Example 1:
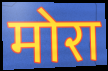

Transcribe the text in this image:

मोरा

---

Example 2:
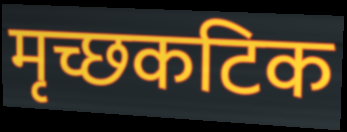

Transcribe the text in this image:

मृच्छकटिक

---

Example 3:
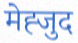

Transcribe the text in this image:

मेह्जुद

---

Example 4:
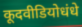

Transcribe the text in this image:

कूदवीडियोधंधे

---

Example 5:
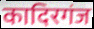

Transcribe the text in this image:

कादिरगंज